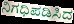
ನಿಗಧಿಪಡಿಸಿದ